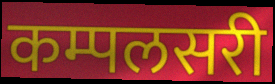
कम्पलसरी